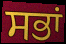
ਸਭਾਂ